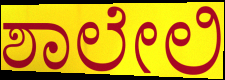
ಶಾಲೇಲಿ